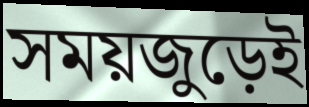
সময়জুড়েই